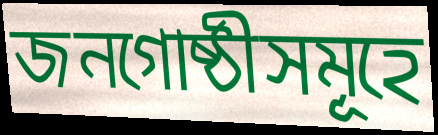
জনগোষ্ঠীসমূহে